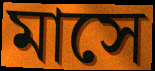
মাসে